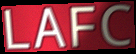
LAFC